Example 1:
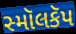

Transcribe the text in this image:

સ્મૉલકૅપ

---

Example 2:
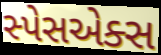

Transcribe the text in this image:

સ્પેસએક્સ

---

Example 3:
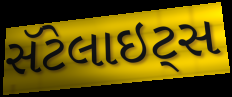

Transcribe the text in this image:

સૅટેલાઇટ્સ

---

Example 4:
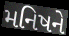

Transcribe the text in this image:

મનિષને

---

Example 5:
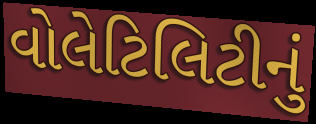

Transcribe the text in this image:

વોલેટિલિટીનું